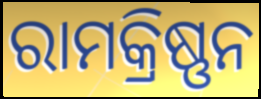
ରାମକ୍ରିଷ୍ଣନ